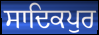
ਸਾਦਿਕਪੁਰ